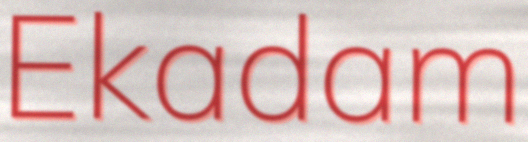
Ekadam